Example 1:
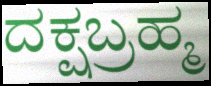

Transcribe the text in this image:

ದಕ್ಷಬ್ರಹ್ಮ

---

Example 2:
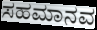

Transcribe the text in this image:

ಸಹಮಾನವ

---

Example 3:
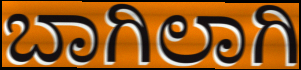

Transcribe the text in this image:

ಬಾಗಿಲಾಗಿ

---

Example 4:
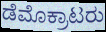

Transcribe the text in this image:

ಡೆಮೊಕ್ರಾಟರು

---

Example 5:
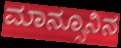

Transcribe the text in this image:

ಮಾನ್ಸೂನಿನ